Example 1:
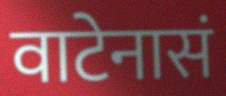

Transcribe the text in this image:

वाटेनासं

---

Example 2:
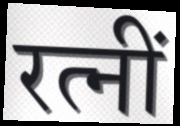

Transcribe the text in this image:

रत्नीं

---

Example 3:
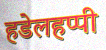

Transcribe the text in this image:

हडेलहप्पी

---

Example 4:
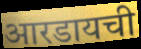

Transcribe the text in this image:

आरडायची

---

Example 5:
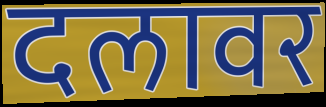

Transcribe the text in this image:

दलावर